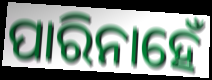
ପାରିନାହେଁ